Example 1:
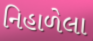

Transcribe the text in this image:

નિહાળેલા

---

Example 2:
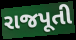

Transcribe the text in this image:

રાજપૂતી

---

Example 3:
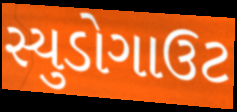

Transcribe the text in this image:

સ્યુડોગાઉટ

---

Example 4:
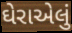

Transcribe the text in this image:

ઘેરાએલું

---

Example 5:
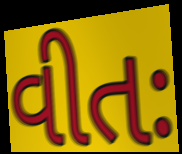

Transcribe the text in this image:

વીતઃ